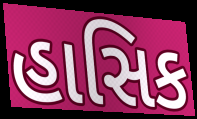
હાસિક